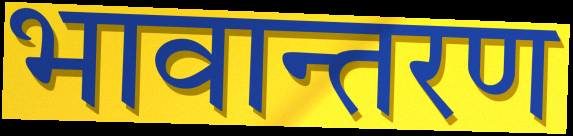
भावान्तरण